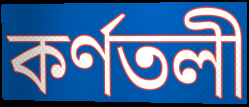
কর্ণতলী